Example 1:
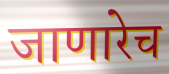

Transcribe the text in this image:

जाणारेच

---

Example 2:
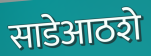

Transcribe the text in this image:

साडेआठशे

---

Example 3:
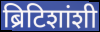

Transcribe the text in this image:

ब्रिटिशांशी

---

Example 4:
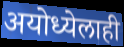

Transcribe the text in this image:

अयोध्येलाही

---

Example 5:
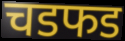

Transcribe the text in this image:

चडफड